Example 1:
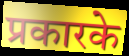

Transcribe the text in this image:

प्रकारके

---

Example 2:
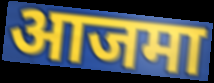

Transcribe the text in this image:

आजमा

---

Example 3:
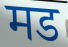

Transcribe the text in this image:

मड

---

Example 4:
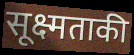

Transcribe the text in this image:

सूक्ष्मताकी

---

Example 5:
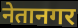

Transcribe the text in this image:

नेतानगर